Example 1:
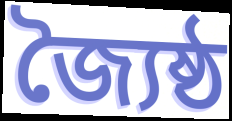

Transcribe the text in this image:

জ্যৈষ্ঠ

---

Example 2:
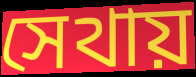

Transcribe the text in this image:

সেথায়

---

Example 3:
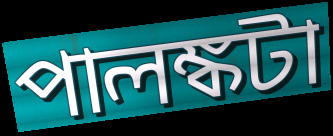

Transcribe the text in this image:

পালঙ্কটা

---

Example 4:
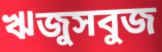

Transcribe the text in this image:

ঋজুসবুজ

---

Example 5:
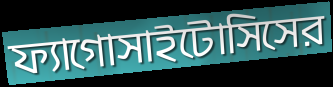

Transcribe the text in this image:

ফ্যাগোসাইটোসিসের